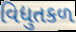
વિદ્યુતકળ